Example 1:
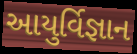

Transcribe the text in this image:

આયુર્વિજ્ઞાન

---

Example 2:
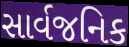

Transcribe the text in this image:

સાર્વજનિક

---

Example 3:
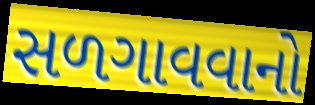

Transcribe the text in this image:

સળગાવવાનો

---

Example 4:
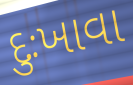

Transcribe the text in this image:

દુઃખાવા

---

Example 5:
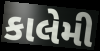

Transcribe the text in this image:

કાલેમી